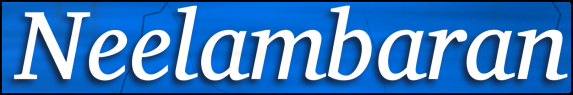
Neelambaran